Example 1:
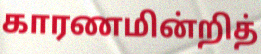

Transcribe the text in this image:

காரணமின்றித்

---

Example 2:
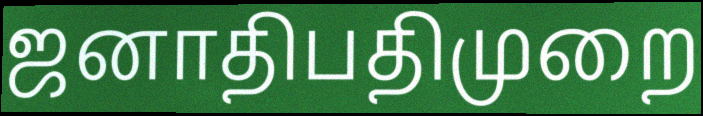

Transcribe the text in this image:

ஜனாதிபதிமுறை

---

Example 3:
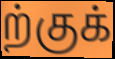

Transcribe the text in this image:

ற்குக்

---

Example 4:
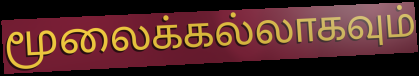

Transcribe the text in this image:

மூலைக்கல்லாகவும்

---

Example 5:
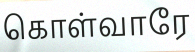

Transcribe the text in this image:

கொள்வாரே